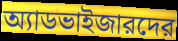
অ্যাডভাইজারদের